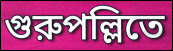
গুরুপল্লিতে